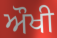
ਔਖੀ